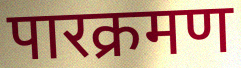
पारक्रमण